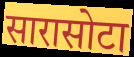
सारासोटा